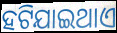
ହଟିଯାଇଥାଏ